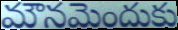
మౌనమెందుకు